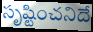
సృష్టించనిదే